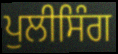
ਪੁਲੀਸਿੰਗ